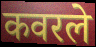
कवरले